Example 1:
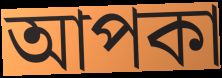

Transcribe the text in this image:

আপকা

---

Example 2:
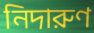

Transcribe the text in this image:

নিদারুণ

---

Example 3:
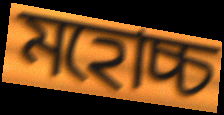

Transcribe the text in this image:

মহোচ্চ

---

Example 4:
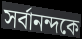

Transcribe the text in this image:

সর্বানন্দকে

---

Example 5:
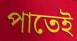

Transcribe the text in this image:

পাতেই